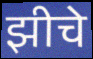
झीचे